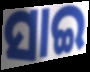
ସାଇ